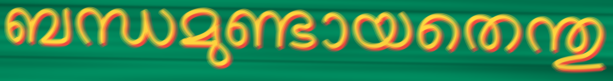
ബന്ധമുണ്ടായതെന്തു